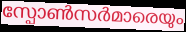
സ്പോൺസർമാരെയും